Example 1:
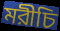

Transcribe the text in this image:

মরীচি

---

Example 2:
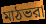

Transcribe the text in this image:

মাঠভরা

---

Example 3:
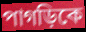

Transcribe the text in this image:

পাগড়িকে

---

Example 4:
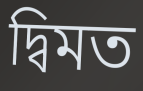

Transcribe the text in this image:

দ্বিমত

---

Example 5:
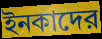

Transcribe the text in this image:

ইনকাদের